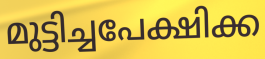
മുട്ടിച്ചപേക്ഷിക്ക